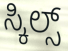
ಸ್ಕಿಲ್ಸ್